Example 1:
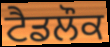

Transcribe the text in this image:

ਟੈਡਲੌਕ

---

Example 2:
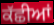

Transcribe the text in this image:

ਕੱਛੀਆਂ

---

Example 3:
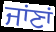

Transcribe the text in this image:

ਜਾਂਣਾਂ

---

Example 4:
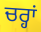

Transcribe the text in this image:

ਚਰ੍ਹਾਂ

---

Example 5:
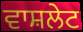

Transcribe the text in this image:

ਵਾਸ਼ਲੇਟ